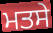
ਮਤਸੇ